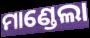
ମାଣ୍ଡେଲା